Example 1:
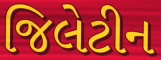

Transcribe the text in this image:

જિલેટીન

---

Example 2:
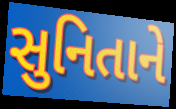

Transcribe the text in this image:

સુનિતાને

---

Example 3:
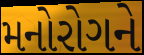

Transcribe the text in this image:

મનોરોગને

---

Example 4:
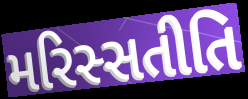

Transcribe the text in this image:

મરિસ્સતીતિ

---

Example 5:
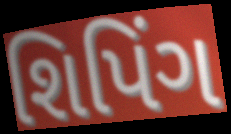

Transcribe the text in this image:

શિપિંગ